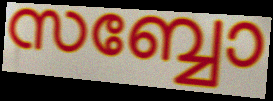
സബ്ബോ